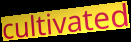
cultivated